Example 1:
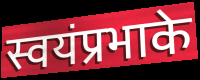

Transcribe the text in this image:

स्वयंप्रभाके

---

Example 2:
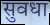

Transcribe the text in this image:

सुवधा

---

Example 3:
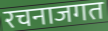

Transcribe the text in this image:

रचनाजगत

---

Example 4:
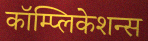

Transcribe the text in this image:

कॉम्प्लिकेशन्स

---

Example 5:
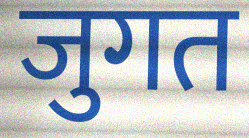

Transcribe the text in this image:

जुगत